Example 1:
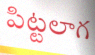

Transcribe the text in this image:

పిట్టలాగ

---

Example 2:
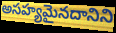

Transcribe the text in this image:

అసహ్యమైనదానిని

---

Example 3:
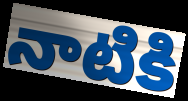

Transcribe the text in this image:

నాటికి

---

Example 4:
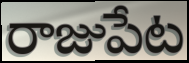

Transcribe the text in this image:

రాజుపేట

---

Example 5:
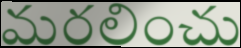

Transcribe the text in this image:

మరలించు